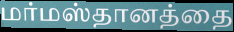
மர்மஸ்தானத்தை